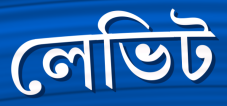
লেভিট